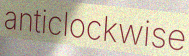
anticlockwise